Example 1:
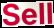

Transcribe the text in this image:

Sell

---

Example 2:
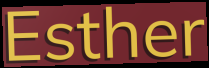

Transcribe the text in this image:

Esther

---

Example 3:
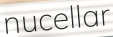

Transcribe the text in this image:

nucellar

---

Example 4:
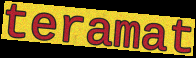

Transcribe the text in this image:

teramat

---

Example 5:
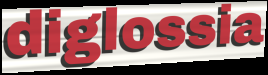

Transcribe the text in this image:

diglossia